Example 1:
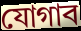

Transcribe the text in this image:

যোগাব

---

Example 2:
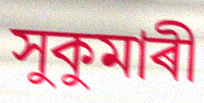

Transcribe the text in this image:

সুকুমাৰী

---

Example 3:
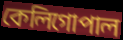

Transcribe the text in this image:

কেলিগোপাল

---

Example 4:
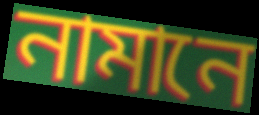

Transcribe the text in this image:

নামানে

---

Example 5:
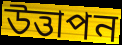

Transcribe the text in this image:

উত্তাপন